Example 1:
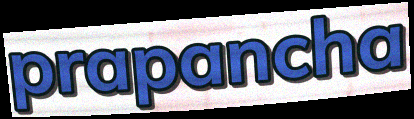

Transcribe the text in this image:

prapancha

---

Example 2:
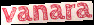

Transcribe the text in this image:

vanara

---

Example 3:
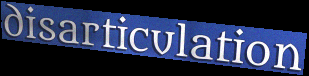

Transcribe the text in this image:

disarticulation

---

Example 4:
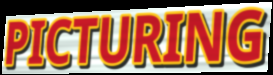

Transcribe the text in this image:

PICTURING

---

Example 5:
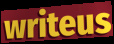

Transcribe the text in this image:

writeus